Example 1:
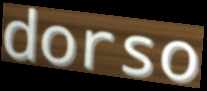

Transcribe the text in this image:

dorso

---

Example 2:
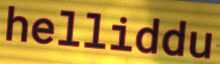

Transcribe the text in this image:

helliddu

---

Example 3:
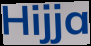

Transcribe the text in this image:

Hijja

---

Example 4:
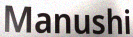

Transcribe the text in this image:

Manushi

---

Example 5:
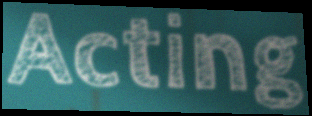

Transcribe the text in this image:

Acting